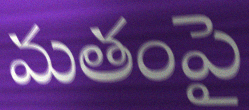
మతంపై